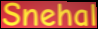
Snehal